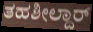
ತಹಶೀಲ್ದಾರ್